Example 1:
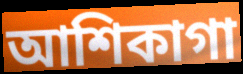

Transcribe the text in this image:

আশিকাগা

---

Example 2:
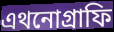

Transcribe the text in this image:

এথনোগ্রাফি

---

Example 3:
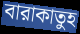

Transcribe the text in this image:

বারাকাতুহ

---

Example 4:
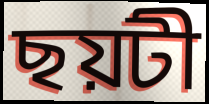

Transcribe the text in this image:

ছয়টী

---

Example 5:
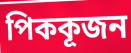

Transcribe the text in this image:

পিককূজন